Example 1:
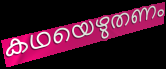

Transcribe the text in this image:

കഥയെഴുതണം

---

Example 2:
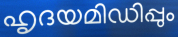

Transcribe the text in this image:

ഹൃദയമിഡിപ്പും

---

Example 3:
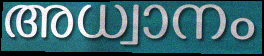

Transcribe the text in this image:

അധ്വാനം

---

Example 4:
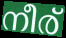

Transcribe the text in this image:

നീര്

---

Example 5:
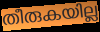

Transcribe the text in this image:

തീരുകയില്ല